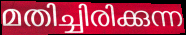
മതിച്ചിരിക്കുന്ന